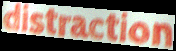
distraction